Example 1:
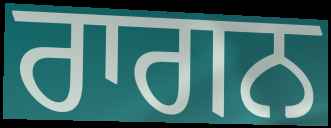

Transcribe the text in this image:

ਰਾਗਨ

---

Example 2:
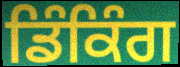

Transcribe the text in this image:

ਡਿੰਕਿੰਗ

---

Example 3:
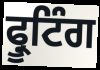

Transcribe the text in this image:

ਫ੍ਰੂਟਿੰਗ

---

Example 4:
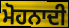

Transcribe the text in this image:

ਮੋਹਨਾਦੀ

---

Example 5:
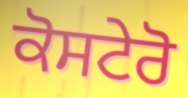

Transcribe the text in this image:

ਕੋਸਟੇਰੋ